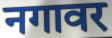
नगावर